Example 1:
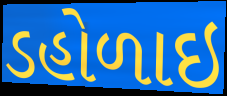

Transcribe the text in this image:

ડહોળાઇ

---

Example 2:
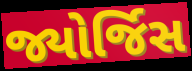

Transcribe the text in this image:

જ્યોર્જિસ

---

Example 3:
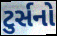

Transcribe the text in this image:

ટુર્સનો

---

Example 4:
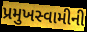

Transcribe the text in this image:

પ્રમુખસ્વામીની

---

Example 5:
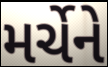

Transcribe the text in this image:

મર્ચેને